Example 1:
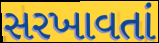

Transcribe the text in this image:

સરખાવતાં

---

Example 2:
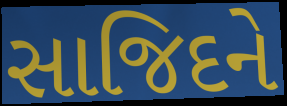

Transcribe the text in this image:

સાજિદને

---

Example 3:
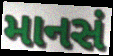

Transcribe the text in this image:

માનસં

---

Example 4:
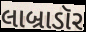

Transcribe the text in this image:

લાબ્રાડૉર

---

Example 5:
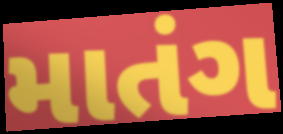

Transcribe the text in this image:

માતંગ